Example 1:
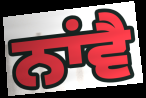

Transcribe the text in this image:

ਨਾਂਵੈ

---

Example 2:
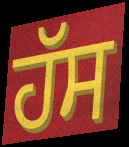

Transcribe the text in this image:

ਹੱਸ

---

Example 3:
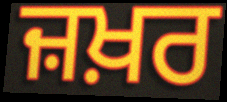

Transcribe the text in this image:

ਜ਼ਖ਼ਰ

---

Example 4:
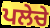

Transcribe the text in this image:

ਪਲੇਚੇ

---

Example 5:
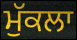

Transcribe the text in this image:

ਮੁੱਕਲਾ